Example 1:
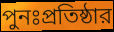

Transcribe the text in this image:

পুনঃপ্রতিষ্ঠার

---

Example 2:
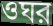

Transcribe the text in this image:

ওঘর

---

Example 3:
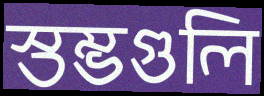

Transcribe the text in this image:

স্তম্ভগুলি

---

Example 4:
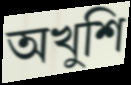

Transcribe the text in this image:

অখুশি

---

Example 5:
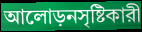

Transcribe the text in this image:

আলোড়নসৃষ্টিকারী